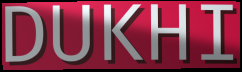
DUKHI